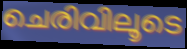
ചെരിവിലൂടെ